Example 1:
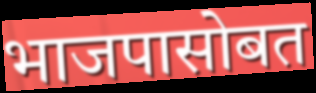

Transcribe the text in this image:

भाजपासोबत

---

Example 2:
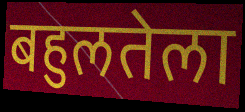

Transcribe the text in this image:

बहुलतेला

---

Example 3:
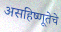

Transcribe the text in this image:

असहिष्णूतेचे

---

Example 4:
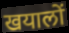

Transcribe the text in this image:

खयालों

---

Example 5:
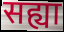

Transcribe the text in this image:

सह्या